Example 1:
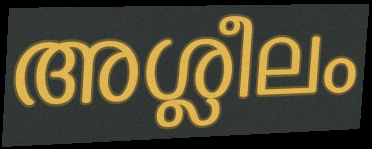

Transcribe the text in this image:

അശ്ലീലം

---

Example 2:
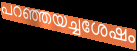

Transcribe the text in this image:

പറഞ്ഞയച്ചശേഷം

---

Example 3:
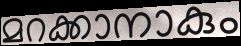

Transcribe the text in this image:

മറക്കാനാകും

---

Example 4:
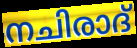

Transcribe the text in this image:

നചിരാദ്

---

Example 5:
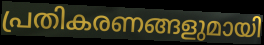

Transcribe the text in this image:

പ്രതികരണങ്ങളുമായി